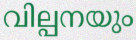
വില്പനയും